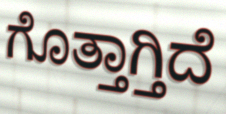
ಗೊತ್ತಾಗ್ತಿದೆ